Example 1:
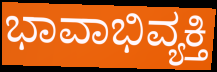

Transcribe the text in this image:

ಭಾವಾಭಿವ್ಯಕ್ತಿ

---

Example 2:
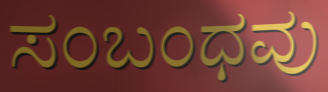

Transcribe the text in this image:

ಸಂಬಂಧವು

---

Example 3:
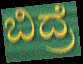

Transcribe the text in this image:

ಬಿದ್ರೆ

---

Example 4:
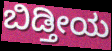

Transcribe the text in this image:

ಬಿಡ್ತೀಯ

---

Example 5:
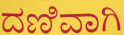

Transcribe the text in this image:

ದಣಿವಾಗಿ